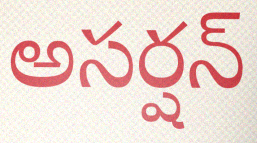
అసర్షన్